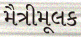
મૈત્રીમૂલક